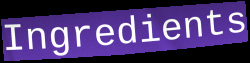
Ingredients